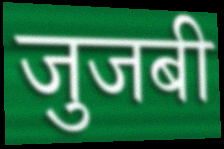
जुजबी